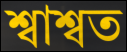
শ্বাশ্বত